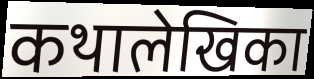
कथालेखिका